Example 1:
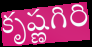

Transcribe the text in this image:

కృష్ణగిరి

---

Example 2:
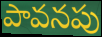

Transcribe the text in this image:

పావనపు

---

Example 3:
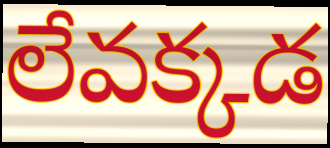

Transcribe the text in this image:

లేవక్కడ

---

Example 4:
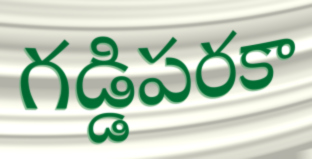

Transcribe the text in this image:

గడ్డిపరకా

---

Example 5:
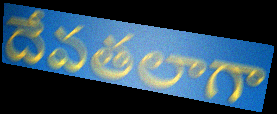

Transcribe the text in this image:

దేవతలాగా